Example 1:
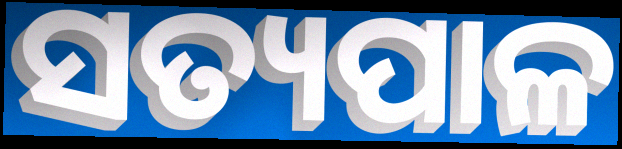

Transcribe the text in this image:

ସତ୍ୟପାଳ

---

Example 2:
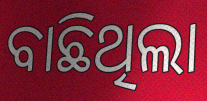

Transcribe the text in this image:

ବାଛିଥିଲା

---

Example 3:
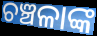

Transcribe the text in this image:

ଚଞ୍ଚଳାଙ୍କ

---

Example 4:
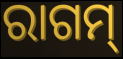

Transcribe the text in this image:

ରାଗମ୍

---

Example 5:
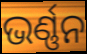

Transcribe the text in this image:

ଭର୍ଣ୍ଣନ